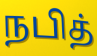
நபித்